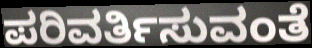
ಪರಿವರ್ತಿಸುವಂತೆ